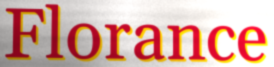
Florance